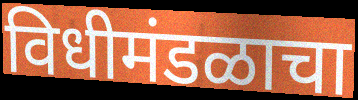
विधीमंडळाचा